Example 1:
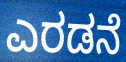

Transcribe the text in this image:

ಎರಡನೆ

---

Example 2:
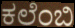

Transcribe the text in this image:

ಕಲೆಂಬಿ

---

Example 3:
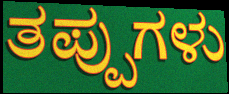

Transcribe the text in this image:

ತಪ್ಪುಗಳು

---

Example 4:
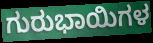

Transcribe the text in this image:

ಗುರುಭಾಯಿಗಳ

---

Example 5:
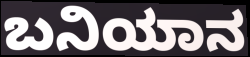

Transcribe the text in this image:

ಬನಿಯಾನ